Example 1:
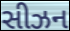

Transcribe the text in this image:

સીઝન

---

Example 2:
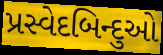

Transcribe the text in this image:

પ્રસ્વેદબિન્દુઓ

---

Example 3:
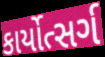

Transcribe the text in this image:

કાર્યોત્સર્ગ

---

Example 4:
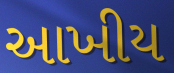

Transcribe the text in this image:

આખીય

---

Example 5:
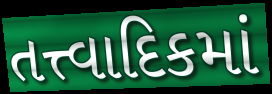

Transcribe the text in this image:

તત્ત્વાદિકમાં